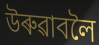
উৰুৱাবলৈ